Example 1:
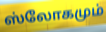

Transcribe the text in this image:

ஸ்லோகமும்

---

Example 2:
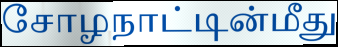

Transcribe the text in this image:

சோழநாட்டின்மீது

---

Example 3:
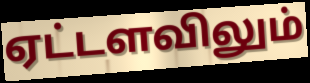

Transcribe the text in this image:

ஏட்டளவிலும்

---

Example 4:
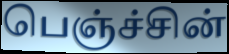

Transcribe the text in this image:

பெஞ்ச்சின்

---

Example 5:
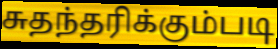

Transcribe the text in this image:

சுதந்தரிக்கும்படி